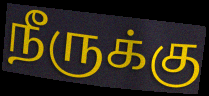
நீருக்கு